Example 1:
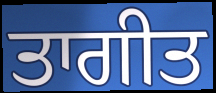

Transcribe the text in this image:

ਤਾਗੀਤ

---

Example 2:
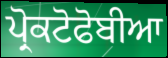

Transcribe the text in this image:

ਪ੍ਰੋਕਟੋਫੋਬੀਆ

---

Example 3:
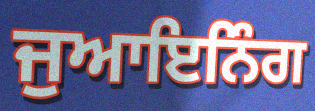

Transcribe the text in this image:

ਜੁਆਇਨਿੰਗ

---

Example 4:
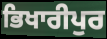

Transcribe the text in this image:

ਭਿਖਾਰੀਪੁਰ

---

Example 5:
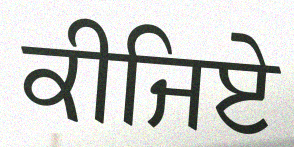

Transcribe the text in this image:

ਕੀਜਿਏ